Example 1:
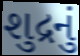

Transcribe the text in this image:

શુદ્રનું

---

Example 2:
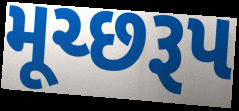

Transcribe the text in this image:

મૂચ્છરૂપ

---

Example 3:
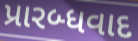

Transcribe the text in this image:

પ્રારબ્ધવાદ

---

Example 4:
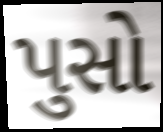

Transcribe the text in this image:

પુસો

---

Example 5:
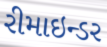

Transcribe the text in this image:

રીમાઇન્ડર